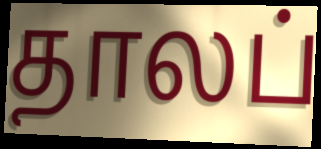
தாலப்